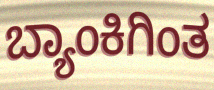
ಬ್ಯಾಂಕಿಗಿಂತ